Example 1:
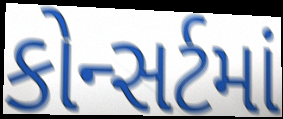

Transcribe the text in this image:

કોન્સર્ટમાં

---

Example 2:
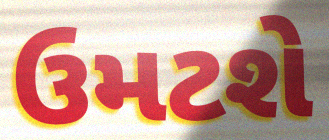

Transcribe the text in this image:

ઉમટશે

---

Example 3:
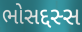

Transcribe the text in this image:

ભોસદ્દસ્સ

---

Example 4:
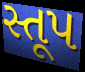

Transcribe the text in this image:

સ્તૂપ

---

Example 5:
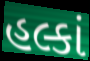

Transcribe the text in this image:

હલ્કાં